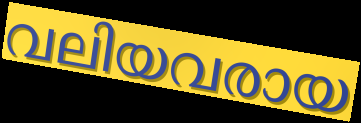
വലിയവരായ